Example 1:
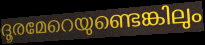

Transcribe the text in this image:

ദൂരമേറെയുണ്ടെങ്കിലും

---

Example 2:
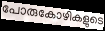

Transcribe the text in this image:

പോരുകോഴികളുടെ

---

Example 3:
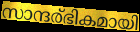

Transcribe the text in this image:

സാന്ദര്ഭികമായി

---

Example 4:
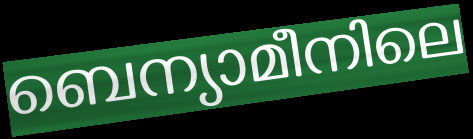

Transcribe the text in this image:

ബെന്യാമീനിലെ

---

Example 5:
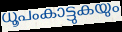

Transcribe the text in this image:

ധൂപംകാട്ടുകയും